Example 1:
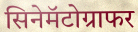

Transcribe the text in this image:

सिनेमॅटोग्राफर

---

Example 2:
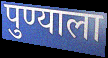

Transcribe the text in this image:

पुण्याला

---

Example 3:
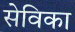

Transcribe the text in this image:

सेविका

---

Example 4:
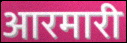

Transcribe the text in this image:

आरमारी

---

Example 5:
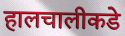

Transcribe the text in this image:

हालचालीकडे